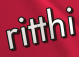
ritthi